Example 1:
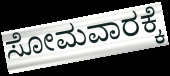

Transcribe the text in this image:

ಸೋಮವಾರಕ್ಕೆ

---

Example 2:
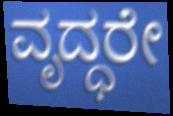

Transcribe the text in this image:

ವೃದ್ಧರೇ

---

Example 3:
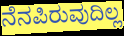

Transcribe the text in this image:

ನೆನಪಿರುವುದಿಲ್ಲ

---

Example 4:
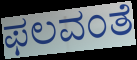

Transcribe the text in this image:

ಫಲವಂತೆ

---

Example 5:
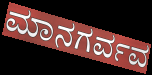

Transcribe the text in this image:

ಮಾನಗರ್ವವ